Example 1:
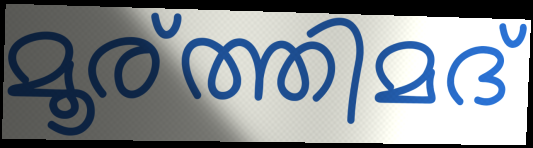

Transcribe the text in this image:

മൂര്ത്തിമദ്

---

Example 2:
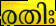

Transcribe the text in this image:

രതിഃ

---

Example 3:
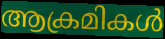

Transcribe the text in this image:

ആക്രമികൾ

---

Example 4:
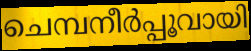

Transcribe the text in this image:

ചെമ്പനീർപ്പൂവായി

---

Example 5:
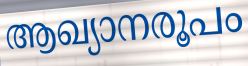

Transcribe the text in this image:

ആഖ്യാനരൂപം